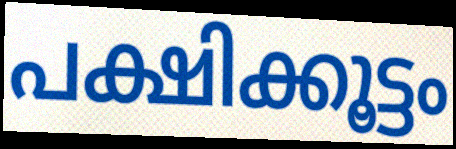
പക്ഷിക്കൂട്ടം